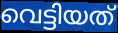
വെട്ടിയത്